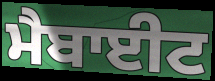
ਮੈਬਾਈਟ